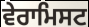
ਵੇਰਾਮਿਸਟ